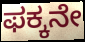
ಫಕ್ಕನೇ